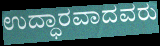
ಉದ್ಧಾರವಾದವರು